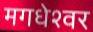
मगधेश्वर